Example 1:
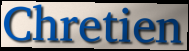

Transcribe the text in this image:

Chretien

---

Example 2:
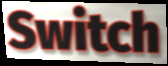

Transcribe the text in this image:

Switch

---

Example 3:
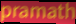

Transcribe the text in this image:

pramath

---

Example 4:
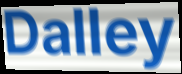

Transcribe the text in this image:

Dalley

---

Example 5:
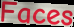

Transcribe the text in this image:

Faces